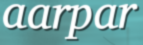
aarpar